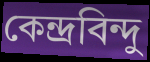
কেন্দ্ৰবিন্দু